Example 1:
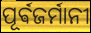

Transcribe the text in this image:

ପୂର୍ଵଜର୍ମାନୀ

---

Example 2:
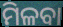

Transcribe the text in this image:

ମିଳବା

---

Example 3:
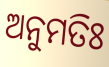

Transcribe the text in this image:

ଅନୁମତିଃ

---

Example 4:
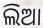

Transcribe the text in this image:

ଲିଆ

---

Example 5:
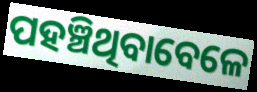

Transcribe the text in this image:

ପହଞ୍ଚିଥିବାବେଳେ